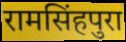
रामसिंहपुरा